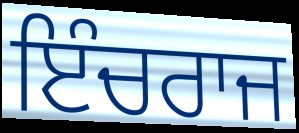
ਇੰਚਰਾਜ